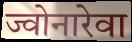
ज्वोनारेवा